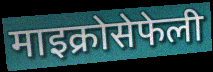
माइक्रोसेफेली